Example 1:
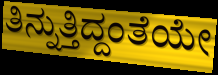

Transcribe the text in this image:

ತಿನ್ನುತ್ತಿದ್ದಂತೆಯೇ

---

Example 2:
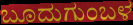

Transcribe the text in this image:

ಬೂದುಗುಂಬಳ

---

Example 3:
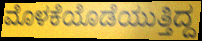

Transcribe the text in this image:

ಮೊಳಕೆಯೊಡೆಯುತ್ತಿದ್ದ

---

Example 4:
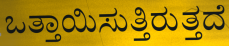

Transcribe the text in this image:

ಒತ್ತಾಯಿಸುತ್ತಿರುತ್ತದೆ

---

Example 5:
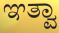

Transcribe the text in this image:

ಞತ್ವಾ